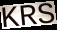
KRS